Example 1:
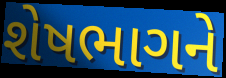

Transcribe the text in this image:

શેષભાગને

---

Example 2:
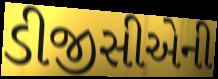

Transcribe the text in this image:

ડીજીસીએની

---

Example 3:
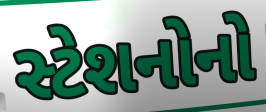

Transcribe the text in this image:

સ્ટેશનોનો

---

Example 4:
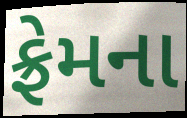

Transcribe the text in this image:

ફ્રેમના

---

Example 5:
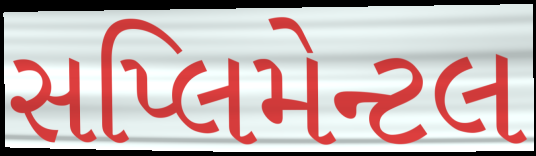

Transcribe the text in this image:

સપ્લિમેન્ટલ